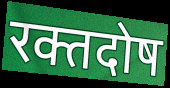
रक्‍तदोष